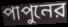
পাপুনের